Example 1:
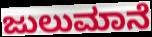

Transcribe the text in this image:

ಜುಲುಮಾನೆ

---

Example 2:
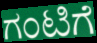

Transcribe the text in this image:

ಗಂಟಿಗೆ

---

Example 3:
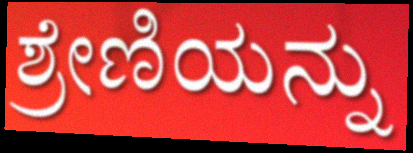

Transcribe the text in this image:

ಶ್ರೇಣಿಯನ್ನು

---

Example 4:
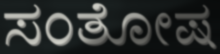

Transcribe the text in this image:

ಸಂತೋಷ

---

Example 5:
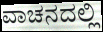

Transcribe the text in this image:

ವಾಚನದಲ್ಲಿ